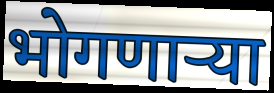
भोगणाऱ्या